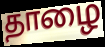
தாழை